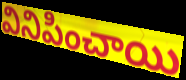
వినిపించాయి